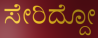
ಸೇರಿದ್ದೋ